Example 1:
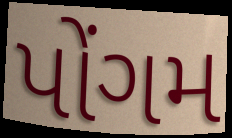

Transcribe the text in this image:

પોંગમ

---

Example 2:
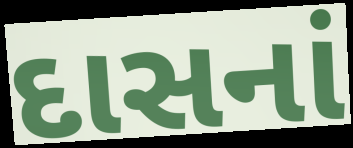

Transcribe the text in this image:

દાસનાં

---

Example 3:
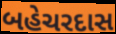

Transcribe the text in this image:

બહેચરદાસ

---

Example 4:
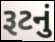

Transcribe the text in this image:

રૂટનું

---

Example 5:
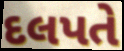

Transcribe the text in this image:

દલપતે